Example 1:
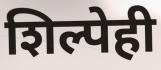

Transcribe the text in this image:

शिल्पेही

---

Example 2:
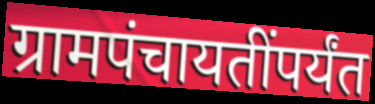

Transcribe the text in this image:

ग्रामपंचायतींपर्यंत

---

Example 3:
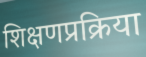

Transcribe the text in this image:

शिक्षणप्रक्रिया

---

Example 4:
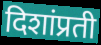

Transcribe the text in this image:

दिशांप्रती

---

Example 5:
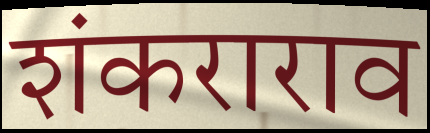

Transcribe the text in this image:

शंकराराव